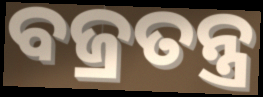
ବଜ୍ରତନ୍ତ୍ର